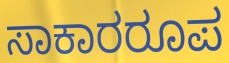
ಸಾಕಾರರೂಪ